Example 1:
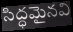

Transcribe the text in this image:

సిద్ధమైనవి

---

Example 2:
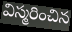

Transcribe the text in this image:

విస్మరించిన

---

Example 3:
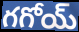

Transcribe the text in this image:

గగోయ్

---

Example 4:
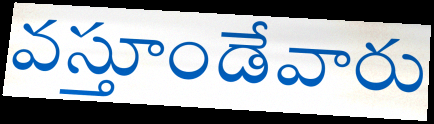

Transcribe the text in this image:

వస్తూండేవారు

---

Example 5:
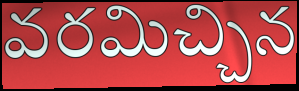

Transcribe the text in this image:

వరమిచ్చిన